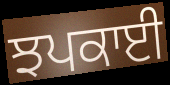
ਝਪਕਾਈ